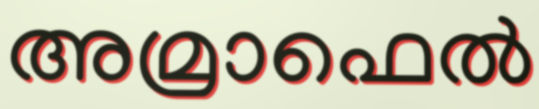
അമ്രാഫെൽ